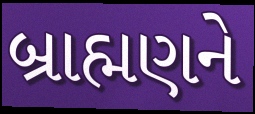
બ્રાહ્મણને